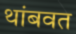
थांबवत